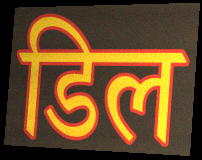
डिल